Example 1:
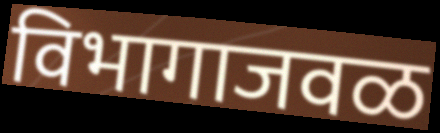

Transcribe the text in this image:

विभागाजवळ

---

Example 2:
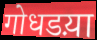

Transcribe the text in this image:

गोधडय़ा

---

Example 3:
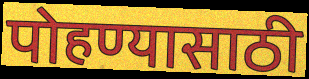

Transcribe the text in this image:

पोहण्यासाठी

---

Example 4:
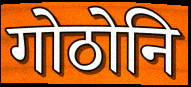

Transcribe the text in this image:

गोठोनि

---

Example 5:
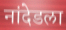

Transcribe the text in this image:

नांदेडला